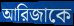
আরিজাকে